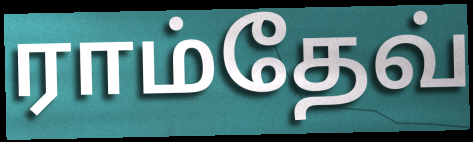
ராம்தேவ்